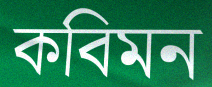
কবিমন